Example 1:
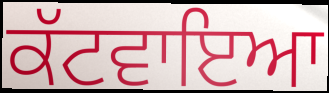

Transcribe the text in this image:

ਕੱਟਵਾਇਆ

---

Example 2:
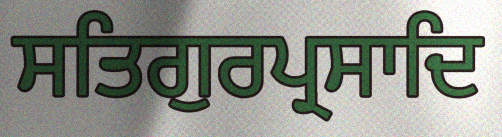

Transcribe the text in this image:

ਸਤਿਗੁਰਪ੍ਰਸਾਦਿ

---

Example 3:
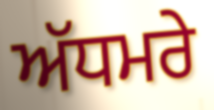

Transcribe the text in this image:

ਅੱਧਮਰੇ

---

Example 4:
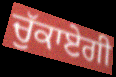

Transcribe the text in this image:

ਚੁੱਕਾਏਗੀ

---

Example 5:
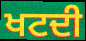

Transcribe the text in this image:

ਖਟਦੀ